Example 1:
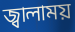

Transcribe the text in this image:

জ্বালাময়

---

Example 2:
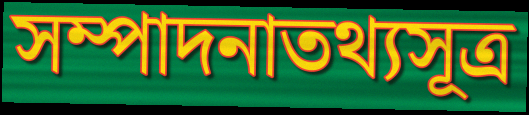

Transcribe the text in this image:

সম্পাদনাতথ্যসূত্র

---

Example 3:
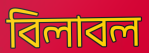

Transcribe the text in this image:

বিলাবল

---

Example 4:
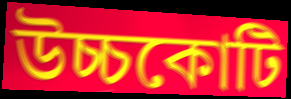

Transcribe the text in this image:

উচ্চকোটি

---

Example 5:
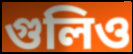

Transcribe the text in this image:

গুলিও